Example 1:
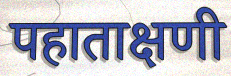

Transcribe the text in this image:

पहाताक्षणी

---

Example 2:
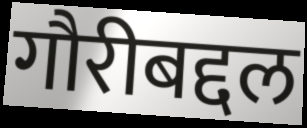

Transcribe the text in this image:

गौरीबद्दल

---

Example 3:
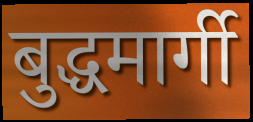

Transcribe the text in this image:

बुद्धमार्गी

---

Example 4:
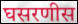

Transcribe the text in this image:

घसरणीस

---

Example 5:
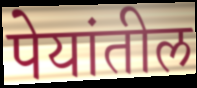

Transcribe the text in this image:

पेयांतील